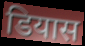
डियास